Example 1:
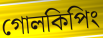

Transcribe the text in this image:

গোলকিপিং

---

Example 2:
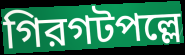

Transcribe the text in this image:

গিরগটপল্লে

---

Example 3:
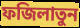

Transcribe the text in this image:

ফজিলাতুন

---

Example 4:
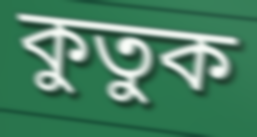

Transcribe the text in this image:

কুতুক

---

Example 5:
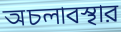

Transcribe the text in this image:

অচলাবস্থার